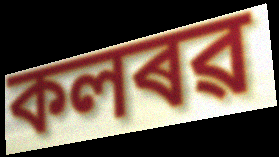
কলৰৱ